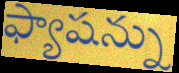
ఫ్యాషన్ను